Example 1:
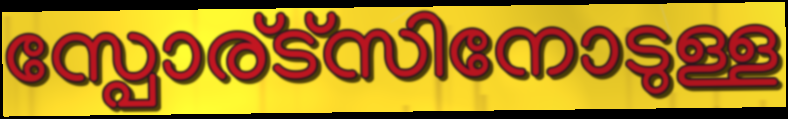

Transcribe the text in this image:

സ്പോര്ട്സിനോടുള്ള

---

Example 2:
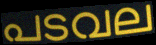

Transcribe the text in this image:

പടവല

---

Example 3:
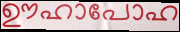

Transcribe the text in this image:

ഊഹാപോഹ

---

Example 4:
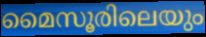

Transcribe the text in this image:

മൈസൂരിലെയും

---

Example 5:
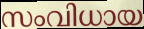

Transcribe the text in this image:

സംവിധായ